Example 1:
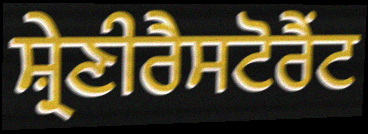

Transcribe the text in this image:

ਸ਼੍ਰੇਣੀਰੈਸਟੋਰੈਂਟ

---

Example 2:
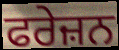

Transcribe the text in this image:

ਫਰੇਜ਼ਨ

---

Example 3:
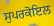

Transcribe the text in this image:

ਸੁਪਰਕੋਇਲ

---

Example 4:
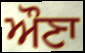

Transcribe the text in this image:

ਔਣਾ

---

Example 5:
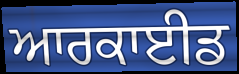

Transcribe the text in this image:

ਆਰਕਾਈਡ